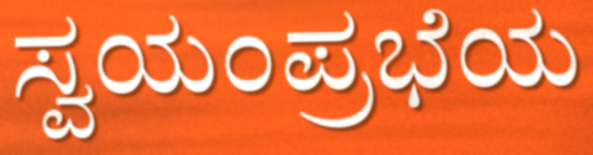
ಸ್ವಯಂಪ್ರಭೆಯ